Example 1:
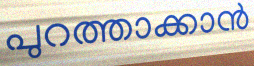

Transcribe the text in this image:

പുറത്താക്കാൻ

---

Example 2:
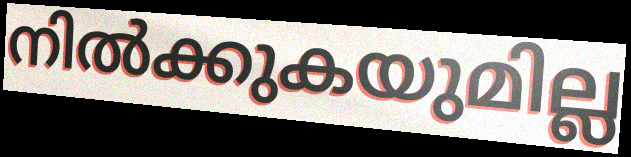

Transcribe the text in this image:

നിൽക്കുകയുമില്ല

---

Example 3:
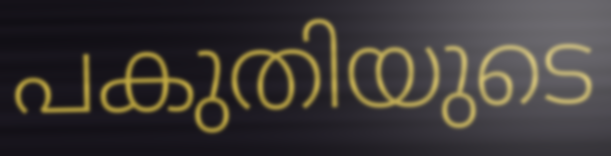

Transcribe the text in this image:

പകുതിയുടെ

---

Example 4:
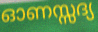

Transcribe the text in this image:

ഓണസ്സദ്യ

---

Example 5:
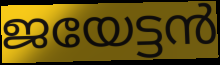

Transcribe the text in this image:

ജയേട്ടൻ